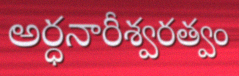
అర్ధనారీశ్వరత్వం